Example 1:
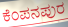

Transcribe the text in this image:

ಕೆಂಪನಪುರ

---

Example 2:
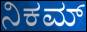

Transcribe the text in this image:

ನಿಕಮ್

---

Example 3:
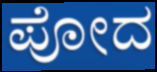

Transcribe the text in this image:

ಪೋದ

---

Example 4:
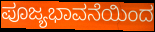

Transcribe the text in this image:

ಪೂಜ್ಯಭಾವನೆಯಿಂದ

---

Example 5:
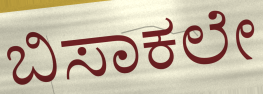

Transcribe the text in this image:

ಬಿಸಾಕಲೇ